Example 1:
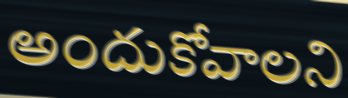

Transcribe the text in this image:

అందుకోవాలని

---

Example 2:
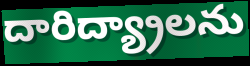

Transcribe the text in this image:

దారిద్య్రాలను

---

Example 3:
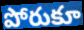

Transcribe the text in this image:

పోరుకూ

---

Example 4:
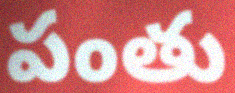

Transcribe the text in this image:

పంతు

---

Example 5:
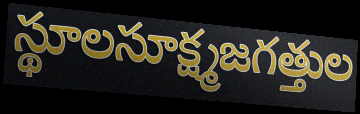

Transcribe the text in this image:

స్థూలసూక్ష్మజగత్తుల